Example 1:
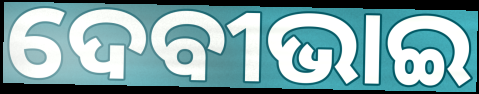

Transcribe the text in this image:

ଦେବୀଭାଇ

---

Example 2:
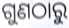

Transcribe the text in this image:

ଗୁଣଠାରୁ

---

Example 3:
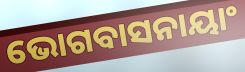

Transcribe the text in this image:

ଭୋଗବାସନାୟାଂ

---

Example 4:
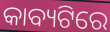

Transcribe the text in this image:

କାବ୍ୟଟିରେ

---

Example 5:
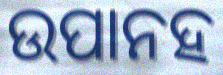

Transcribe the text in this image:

ଉପାନହ